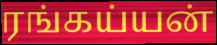
ரங்கய்யன்